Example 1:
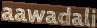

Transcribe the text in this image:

aawadali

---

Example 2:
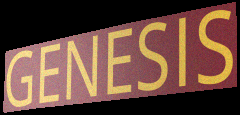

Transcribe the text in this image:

GENESIS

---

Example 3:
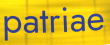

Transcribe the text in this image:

patriae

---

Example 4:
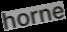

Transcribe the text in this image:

horne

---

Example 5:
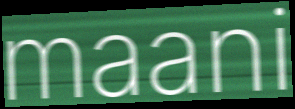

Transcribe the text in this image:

maani